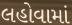
લહોવામાં